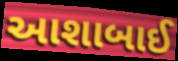
આશાબાઈ